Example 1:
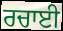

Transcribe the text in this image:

ਰਚਾਈ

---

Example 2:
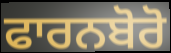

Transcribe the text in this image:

ਫਾਰਨਬੋਰੋ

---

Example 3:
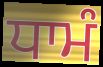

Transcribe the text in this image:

ਧਾਮੰ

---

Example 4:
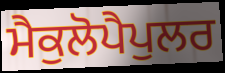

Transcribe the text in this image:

ਮੈਕੁਲੋਪੈਪੁਲਰ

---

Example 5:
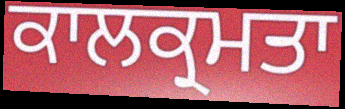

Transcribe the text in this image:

ਕਾਲਕ੍ਰਮਤਾ